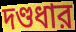
দণ্ডধার